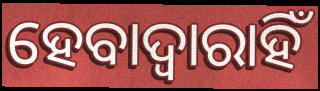
ହେବାଦ୍ଵାରାହିଁ